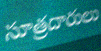
సూత్రదారులు